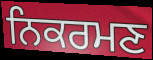
ਨਿਕਰਮਣ